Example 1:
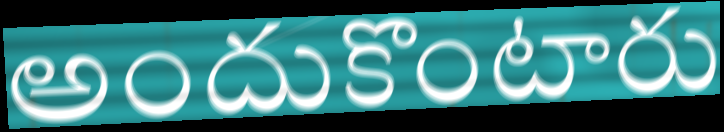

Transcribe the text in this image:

అందుకొంటారు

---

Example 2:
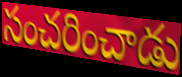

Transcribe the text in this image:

సంచరించాడు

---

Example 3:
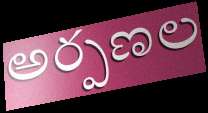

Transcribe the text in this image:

అర్పణల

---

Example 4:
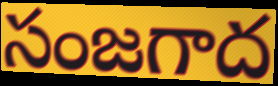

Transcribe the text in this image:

సంజగాద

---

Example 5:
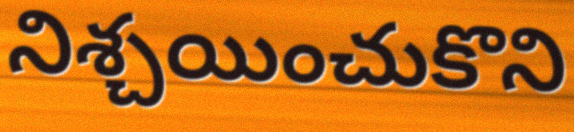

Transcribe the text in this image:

నిశ్చయించుకొని